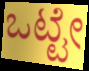
ಒಟ್ಟೇ